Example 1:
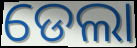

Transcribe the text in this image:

ଡେଲା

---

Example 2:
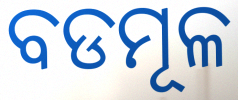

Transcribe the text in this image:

ବଡମୂଳ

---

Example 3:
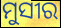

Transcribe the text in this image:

ମୁସୀର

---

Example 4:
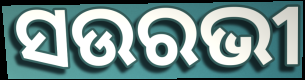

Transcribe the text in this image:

ସଉରଭୀ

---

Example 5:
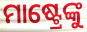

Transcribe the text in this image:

ମାଷ୍ଟ୍ରେଙ୍କୁ